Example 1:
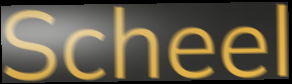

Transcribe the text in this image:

Scheel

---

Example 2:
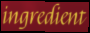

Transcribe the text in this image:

ingredient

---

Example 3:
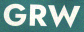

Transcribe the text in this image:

GRW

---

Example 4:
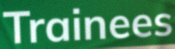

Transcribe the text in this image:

Trainees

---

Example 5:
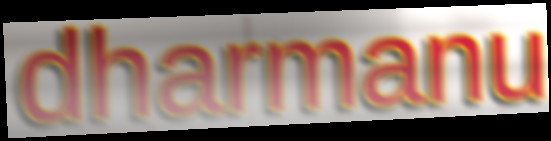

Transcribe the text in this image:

dharmanu